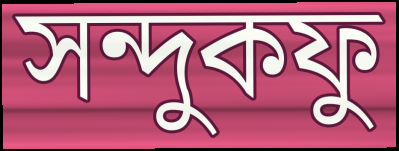
সন্দুকফু